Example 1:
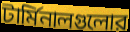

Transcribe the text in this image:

টার্মিনালগুলোর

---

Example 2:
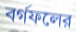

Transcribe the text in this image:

বর্গফলের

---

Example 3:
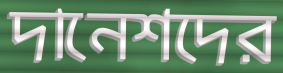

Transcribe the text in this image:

দানেশদের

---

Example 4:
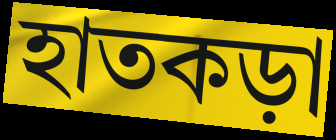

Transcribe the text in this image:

হাতকড়া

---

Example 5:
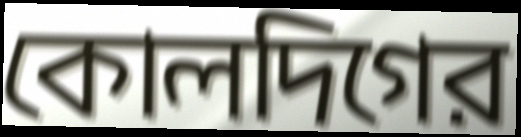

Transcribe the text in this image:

কোলদিগের